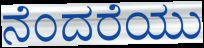
ನೆಂದರೆಯು